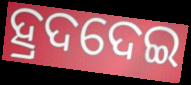
ହ୍ରଦଦେଇ